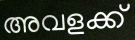
അവളക്ക്